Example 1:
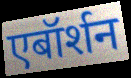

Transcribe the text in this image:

एबॉर्शन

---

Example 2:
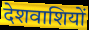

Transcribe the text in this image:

देशवाशियों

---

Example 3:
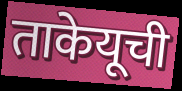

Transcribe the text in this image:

ताकेयूची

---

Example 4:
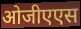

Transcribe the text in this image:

ओजीएएस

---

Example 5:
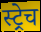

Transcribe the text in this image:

स्ट्रेच